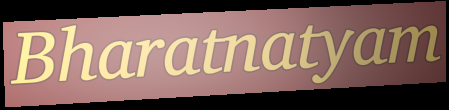
Bharatnatyam